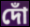
দোঁ